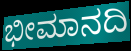
ಭೀಮಾನದಿ